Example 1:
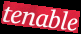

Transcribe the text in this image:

tenable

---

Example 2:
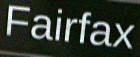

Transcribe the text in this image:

Fairfax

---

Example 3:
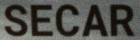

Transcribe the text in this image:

SECAR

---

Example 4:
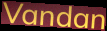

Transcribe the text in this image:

Vandan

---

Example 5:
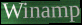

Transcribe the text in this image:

Winamp